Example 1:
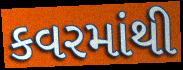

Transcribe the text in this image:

કવરમાંથી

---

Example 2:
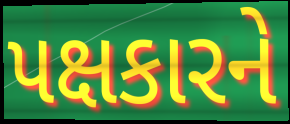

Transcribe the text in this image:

પક્ષકારને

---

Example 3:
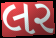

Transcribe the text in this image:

લર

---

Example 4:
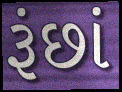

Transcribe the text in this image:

રૂંછાં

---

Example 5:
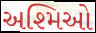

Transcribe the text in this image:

અશ્મિઓ